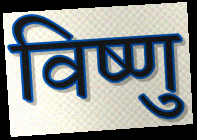
विष्णु